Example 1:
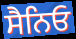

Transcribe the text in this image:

ਸੈਨਿਓ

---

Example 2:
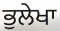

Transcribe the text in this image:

ਭੁਲੇਖਾ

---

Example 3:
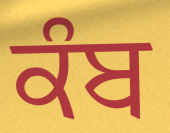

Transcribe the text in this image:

ਕੰਬ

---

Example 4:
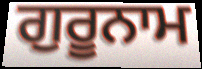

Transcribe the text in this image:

ਗੁਰੂਨਾਮ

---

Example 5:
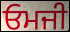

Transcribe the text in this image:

ਓਮਜੀ